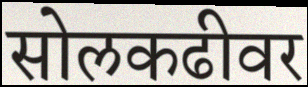
सोलकढीवर